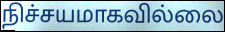
நிச்சயமாகவில்லை